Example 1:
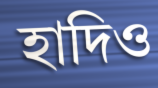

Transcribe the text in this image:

হাদিও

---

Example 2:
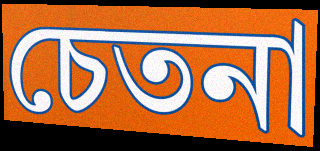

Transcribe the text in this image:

চেতনা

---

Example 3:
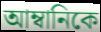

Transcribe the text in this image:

আম্বানিকে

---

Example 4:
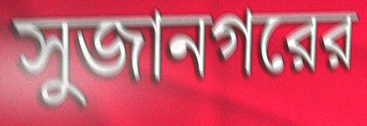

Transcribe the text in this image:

সুজানগরের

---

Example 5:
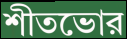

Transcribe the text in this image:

শীতভোর